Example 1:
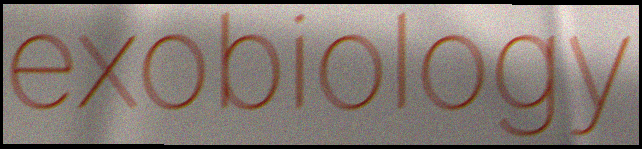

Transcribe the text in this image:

exobiology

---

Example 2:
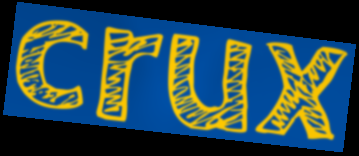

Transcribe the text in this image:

crux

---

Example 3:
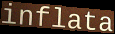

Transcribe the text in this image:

inflata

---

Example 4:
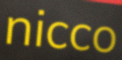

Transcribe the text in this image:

nicco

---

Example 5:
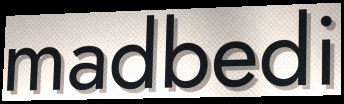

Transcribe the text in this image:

madbedi